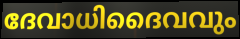
ദേവാധിദൈവവും